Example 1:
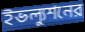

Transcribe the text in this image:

ইভল্যুশনের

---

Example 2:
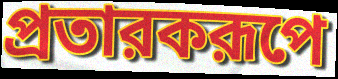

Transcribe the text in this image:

প্রতারকরূপে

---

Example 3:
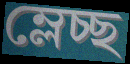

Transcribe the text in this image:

ম্লেচ্ছ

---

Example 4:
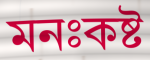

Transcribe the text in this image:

মনঃকষ্ট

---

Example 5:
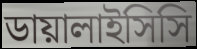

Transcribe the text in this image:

ডায়ালাইসিসি